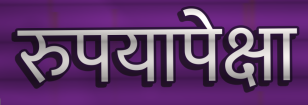
रुपयापेक्षा